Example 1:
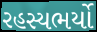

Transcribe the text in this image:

રહસ્યભર્યો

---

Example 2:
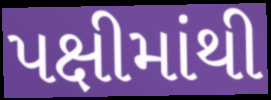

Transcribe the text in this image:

પક્ષીમાંથી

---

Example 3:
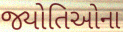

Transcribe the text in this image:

જ્યોતિઓના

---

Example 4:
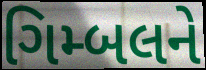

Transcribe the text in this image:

ગિમ્બલને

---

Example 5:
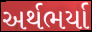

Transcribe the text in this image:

અર્થભર્યા